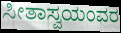
ಸೀತಾಸ್ವಯಂವರ